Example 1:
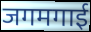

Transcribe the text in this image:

जगमगाई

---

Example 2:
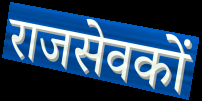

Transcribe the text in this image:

राजसेवकों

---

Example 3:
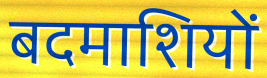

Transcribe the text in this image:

बदमाशियों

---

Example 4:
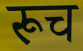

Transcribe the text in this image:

रूच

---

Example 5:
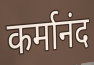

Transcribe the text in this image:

कर्मानंद